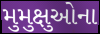
મુમુક્ષુઓના